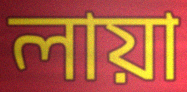
লায়া